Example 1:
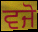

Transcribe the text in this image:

ਵਜੋ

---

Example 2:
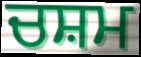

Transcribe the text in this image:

ਚਸ਼ਮ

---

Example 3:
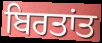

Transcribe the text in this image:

ਬਿਰਤਾਂਤ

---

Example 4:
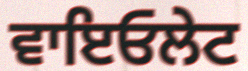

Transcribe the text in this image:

ਵਾਇਓਲੇਟ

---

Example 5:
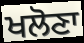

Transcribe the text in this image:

ਖਲੋਣਾ